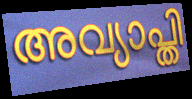
അവ്യാപ്തി